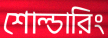
শোল্ডারিং